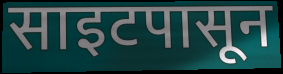
साइटपासून